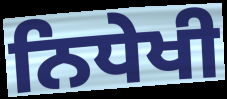
ਨਿਧੇਖੀ